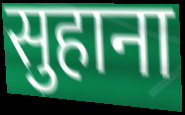
सुहाना